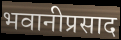
भवानीप्रसाद